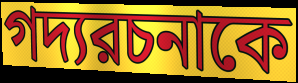
গদ্যরচনাকে